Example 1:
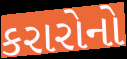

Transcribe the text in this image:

કરારોનો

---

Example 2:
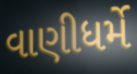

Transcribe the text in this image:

વાણીધર્મે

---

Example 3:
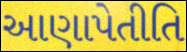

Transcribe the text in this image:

આણાપેતીતિ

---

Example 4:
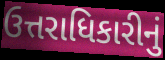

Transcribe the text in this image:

ઉત્તરાધિકારીનું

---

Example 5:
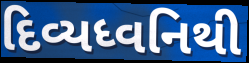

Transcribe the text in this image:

દિવ્યધ્વનિથી